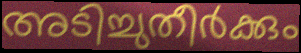
അടിച്ചുതീർക്കും